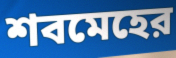
শবমেহের